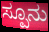
ಸ್ಪೂನು